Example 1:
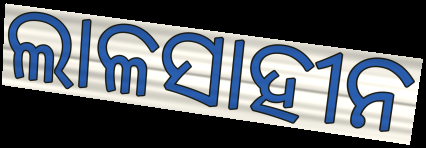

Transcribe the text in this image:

ଲାଳସାହୀନ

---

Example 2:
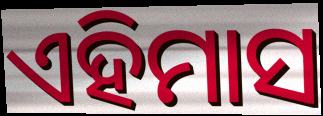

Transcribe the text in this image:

ଏହିମାସ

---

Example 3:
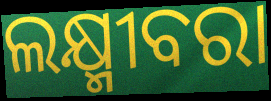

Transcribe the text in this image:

ଲକ୍ଷ୍ମୀବରା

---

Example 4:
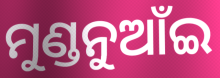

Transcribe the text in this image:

ମୁଣ୍ଡନୁଆଁଇ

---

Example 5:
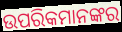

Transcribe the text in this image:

ଉପରିକମାନଙ୍କର